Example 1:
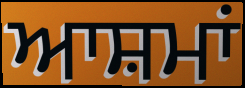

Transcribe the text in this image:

ਆਸ਼ਮਾਂ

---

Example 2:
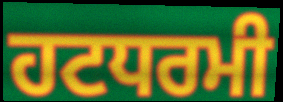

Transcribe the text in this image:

ਹਟਧਰਮੀ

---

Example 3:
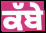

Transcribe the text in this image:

ਕੱਬੇ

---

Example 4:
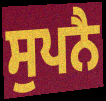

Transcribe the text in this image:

ਸੁਪਨੈ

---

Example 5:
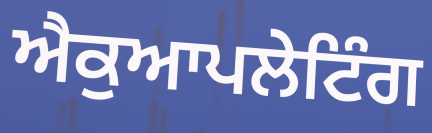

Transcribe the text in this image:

ਐਕੁਆਪਲੇਟਿੰਗ